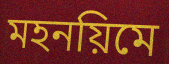
মহনয়িমে